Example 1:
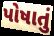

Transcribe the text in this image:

પોષાતું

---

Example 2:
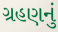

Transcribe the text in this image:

ગ્રહણનું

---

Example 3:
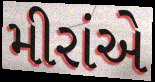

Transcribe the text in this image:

મીરાંએ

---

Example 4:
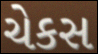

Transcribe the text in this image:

ચેકસ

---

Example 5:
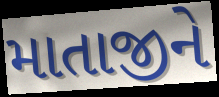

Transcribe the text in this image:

માતાજીને